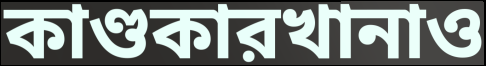
কাণ্ডকারখানাও